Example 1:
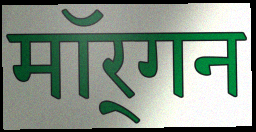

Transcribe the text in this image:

मॉर्गन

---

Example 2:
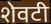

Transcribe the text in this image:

शेवटी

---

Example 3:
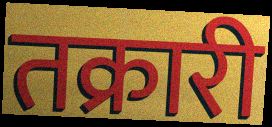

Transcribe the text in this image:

तक्रारी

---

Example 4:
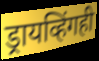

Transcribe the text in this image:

ड्रायव्हिंगही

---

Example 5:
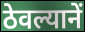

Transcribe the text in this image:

ठेवल्यानें